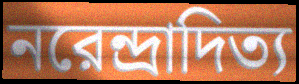
নরেন্দ্রাদিত্য